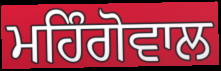
ਮਹਿੰਗੋਵਾਲ